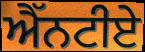
ਐੱਨਟੀਏ